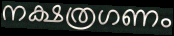
നക്ഷത്രഗണം